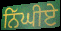
ਨਿੱਘੀਏ